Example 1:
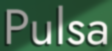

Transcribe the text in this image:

Pulsa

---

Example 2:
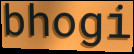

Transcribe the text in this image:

bhogi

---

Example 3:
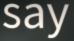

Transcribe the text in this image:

say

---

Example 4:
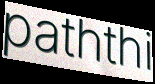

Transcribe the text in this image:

paththi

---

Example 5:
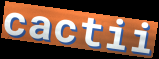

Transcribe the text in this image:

cactii